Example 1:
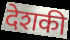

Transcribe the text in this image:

देशकी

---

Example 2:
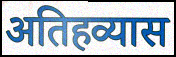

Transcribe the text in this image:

अतिहव्यास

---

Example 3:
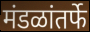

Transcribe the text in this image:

मंडळांतर्फे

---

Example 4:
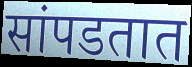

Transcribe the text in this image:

सांपडतात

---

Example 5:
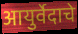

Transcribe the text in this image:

आयुर्वेदाचे